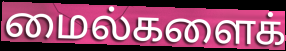
மைல்களைக்